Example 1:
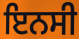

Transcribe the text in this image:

ਇਨਸੀ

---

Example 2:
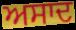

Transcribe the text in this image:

ਅਸਾਦ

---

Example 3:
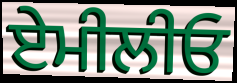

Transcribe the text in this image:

ਏਮੀਲੀਓ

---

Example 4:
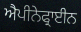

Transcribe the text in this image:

ਐਪੀਨੇਫ੍ਰਾਈਨ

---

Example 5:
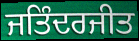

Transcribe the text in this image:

ਜਤਿੰਦਰਜੀਤ